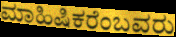
ಮಾಹಿಷಿಕರೆಂಬವರು